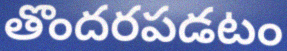
తొందరపడటం